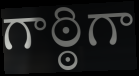
గాఠ్ఠిగా